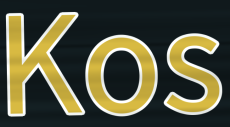
Kos